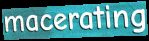
macerating